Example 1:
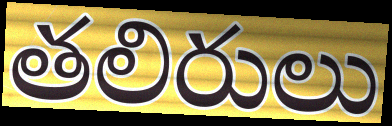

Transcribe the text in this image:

తలిరులు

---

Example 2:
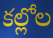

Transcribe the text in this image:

కల్లోల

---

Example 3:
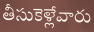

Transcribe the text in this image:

తీసుకెళ్లేవారు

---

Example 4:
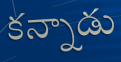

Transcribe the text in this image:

కన్నాడు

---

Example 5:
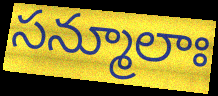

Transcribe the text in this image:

సన్మూలాః